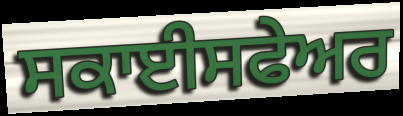
ਸਕਾਈਸਫੇਅਰ